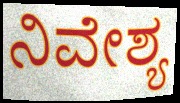
ನಿವೇಶ್ಯ